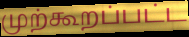
முற்கூறப்பட்ட